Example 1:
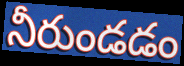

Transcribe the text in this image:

నీరుండడం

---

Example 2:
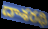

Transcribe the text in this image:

దాశరథి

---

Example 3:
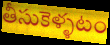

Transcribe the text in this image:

తీసుకెళ్ళటం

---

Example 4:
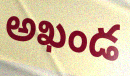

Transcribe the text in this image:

అఖండ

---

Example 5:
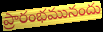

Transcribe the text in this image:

ప్రారంభమునందు